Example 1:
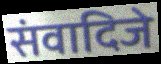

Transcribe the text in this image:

संवादिजे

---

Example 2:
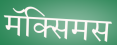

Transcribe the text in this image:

मॅक्सिमस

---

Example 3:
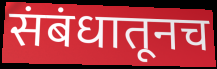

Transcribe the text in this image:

संबंधातूनच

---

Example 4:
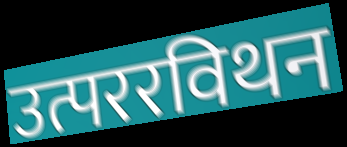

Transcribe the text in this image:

उत्पररविथन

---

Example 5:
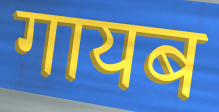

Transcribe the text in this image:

गायब